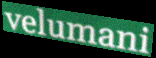
velumani